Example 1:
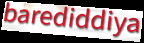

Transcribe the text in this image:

barediddiya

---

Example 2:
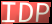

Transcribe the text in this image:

IDP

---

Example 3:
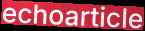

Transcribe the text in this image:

echoarticle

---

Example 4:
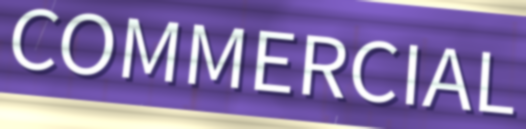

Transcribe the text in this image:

COMMERCIAL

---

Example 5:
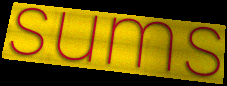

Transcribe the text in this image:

sums